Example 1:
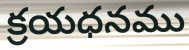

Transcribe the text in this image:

క్రయధనము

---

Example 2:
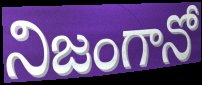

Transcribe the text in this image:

నిజంగానో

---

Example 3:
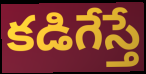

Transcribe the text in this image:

కడిగేస్తే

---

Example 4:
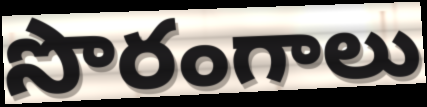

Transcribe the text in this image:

సొరంగాలు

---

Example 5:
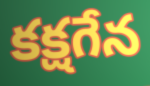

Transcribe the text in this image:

కక్షగేన